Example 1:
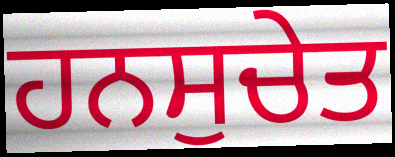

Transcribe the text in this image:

ਹਨਸੁਚੇਤ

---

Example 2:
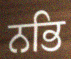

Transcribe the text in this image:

ਨਭਿ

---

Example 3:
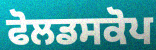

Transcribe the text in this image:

ਫੋਲਡਸਕੋਪ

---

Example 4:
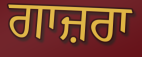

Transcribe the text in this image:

ਗਾਜ਼ਰਾ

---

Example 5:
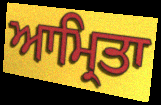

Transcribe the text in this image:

ਆਮ੍ਰਿਤਾ